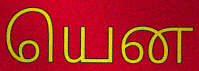
யென